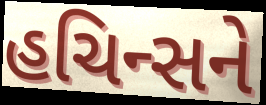
હચિન્સને